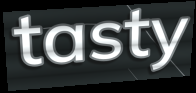
tasty